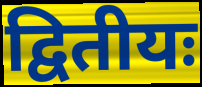
द्वितीयः